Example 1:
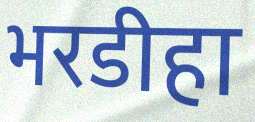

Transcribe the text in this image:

भरडीहा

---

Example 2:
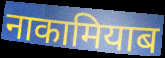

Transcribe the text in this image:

नाकामियाब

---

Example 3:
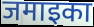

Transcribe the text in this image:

जमाइका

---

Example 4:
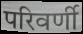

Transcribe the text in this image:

परिवर्णी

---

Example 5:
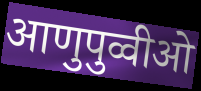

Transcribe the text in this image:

आणुपुव्वीओ